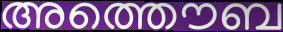
അത്തൌബ